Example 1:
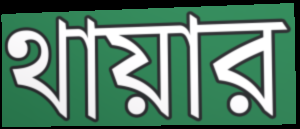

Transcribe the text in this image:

থায়ার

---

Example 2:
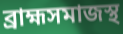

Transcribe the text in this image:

ব্রাহ্মসমাজস্থ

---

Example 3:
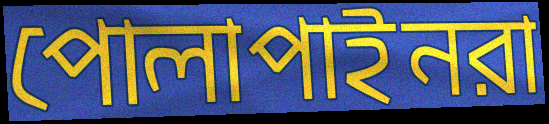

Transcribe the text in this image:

পোলাপাইনরা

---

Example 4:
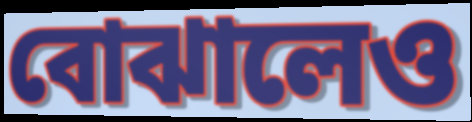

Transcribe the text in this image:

বোঝালেও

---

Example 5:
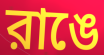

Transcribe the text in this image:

রাঙে